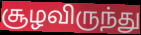
சூழவிருந்து